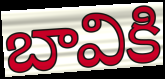
బావికి